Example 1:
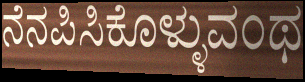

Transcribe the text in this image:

ನೆನಪಿಸಿಕೊಳ್ಳುವಂಥ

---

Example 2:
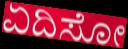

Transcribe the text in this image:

ಏದಿಸೋ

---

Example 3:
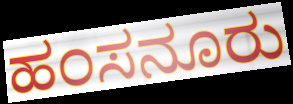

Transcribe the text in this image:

ಹಂಸನೂರು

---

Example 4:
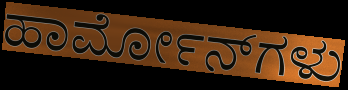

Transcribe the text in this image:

ಹಾರ್ಮೋನ್‌ಗಳು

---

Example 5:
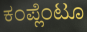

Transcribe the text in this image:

ಕಂಪ್ಲೆಂಟೂ